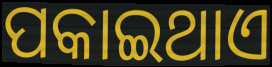
ପକାଇଥାଏ